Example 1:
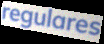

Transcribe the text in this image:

regulares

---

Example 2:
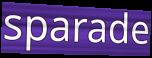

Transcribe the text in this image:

sparade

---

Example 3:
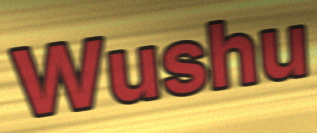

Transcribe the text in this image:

Wushu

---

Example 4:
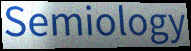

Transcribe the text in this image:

Semiology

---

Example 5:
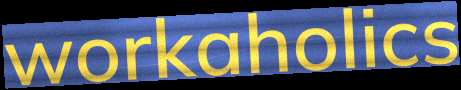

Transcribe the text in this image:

workaholics